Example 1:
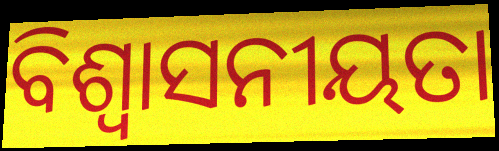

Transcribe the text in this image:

ବିଶ୍ୱାସନୀୟତା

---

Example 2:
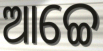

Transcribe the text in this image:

ଆଚ୍ଚେ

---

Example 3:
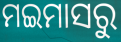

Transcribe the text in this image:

ମଇମାସରୁ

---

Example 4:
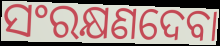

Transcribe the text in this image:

ସଂରକ୍ଷଣଦେବା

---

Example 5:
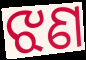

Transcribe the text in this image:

ଝଣ